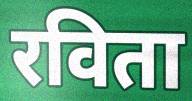
रविता